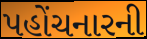
પહોંચનારની